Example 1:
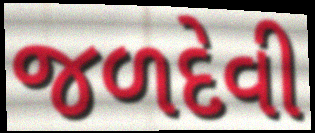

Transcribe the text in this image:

જળદેવી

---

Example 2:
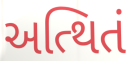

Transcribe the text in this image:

અત્થિતં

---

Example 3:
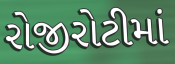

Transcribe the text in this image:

રોજીરોટીમાં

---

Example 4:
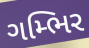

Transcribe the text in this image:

ગમ્ભિર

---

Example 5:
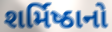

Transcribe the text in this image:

શર્મિષ્ઠાનો